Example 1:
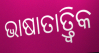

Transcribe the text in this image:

ଭାଷାତାତ୍ତ୍ୱିକ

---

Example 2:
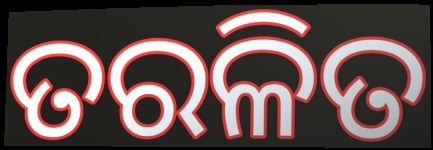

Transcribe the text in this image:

ତରଳିତ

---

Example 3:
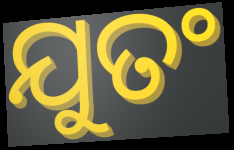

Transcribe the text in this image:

ଯୁତଂ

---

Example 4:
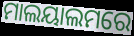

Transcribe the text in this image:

ମାଲୟାଲମରେ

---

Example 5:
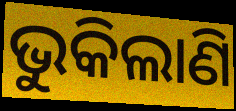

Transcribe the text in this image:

ଭୁକିଲାଣି